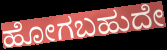
ಹೋಗಬಹುದೇ